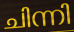
ചിന്നി